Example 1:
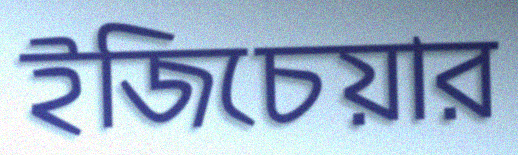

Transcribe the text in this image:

ইজিচেয়ার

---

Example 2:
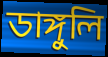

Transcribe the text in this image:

ডাঙ্গুলি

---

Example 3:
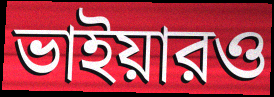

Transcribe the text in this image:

ভাইয়ারও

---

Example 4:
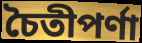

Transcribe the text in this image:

চৈতীপর্ণা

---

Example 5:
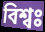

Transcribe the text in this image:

বিশ্বঃ